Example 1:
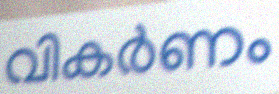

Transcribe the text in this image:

വികർണം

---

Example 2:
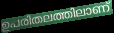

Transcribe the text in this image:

ഉപരിതലത്തിലാണ്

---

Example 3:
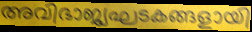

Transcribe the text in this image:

അവിഭാജ്യഘടകങ്ങളായി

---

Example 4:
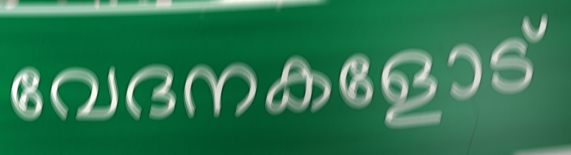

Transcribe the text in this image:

വേദനകളോട്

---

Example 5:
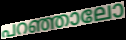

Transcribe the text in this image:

പറഞ്ഞാലോ